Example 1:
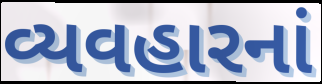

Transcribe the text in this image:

વ્યવહારનાં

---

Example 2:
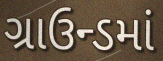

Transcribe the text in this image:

ગ્રાઉન્ડમાં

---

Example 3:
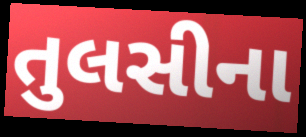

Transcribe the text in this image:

તુલસીના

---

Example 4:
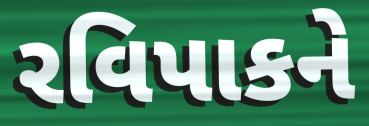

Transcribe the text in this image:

રવિપાકને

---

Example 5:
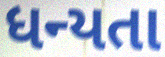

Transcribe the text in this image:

ધન્યતા